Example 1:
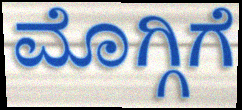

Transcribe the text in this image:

ಮೊಗ್ಗಿಗೆ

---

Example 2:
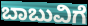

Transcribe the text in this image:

ಬಾಬುವಿಗೆ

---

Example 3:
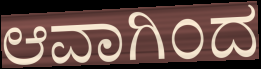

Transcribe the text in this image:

ಆವಾಗಿಂದ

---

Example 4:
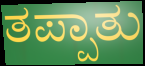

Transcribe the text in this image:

ತಪ್ಪಾತು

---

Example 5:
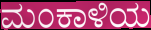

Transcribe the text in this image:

ಮಂಕಾಳಿಯ